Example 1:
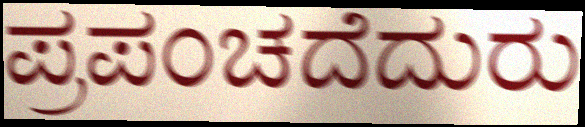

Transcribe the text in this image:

ಪ್ರಪಂಚದೆದುರು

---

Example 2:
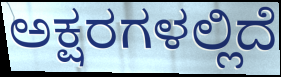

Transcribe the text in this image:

ಅಕ್ಷರಗಳಲ್ಲಿದೆ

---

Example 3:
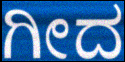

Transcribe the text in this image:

ಗೀದ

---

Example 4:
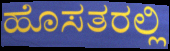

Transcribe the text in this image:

ಹೊಸತರಲ್ಲಿ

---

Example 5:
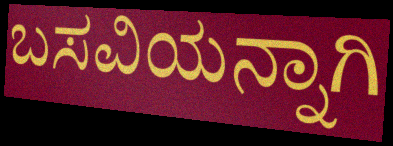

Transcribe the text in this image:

ಬಸವಿಯನ್ನಾಗಿ